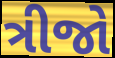
ત્રીજો